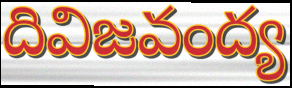
దివిజవంద్య